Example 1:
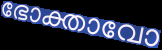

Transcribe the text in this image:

ഭോക്താവോ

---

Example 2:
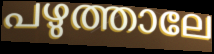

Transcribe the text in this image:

പഴുത്താലേ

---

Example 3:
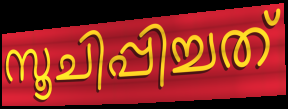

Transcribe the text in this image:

സൂചിപ്പിച്ചത്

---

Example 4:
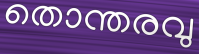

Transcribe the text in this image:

തൊന്തരവു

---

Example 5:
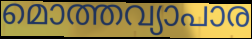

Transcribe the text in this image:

മൊത്തവ്യാപാര